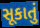
સૂકાતું